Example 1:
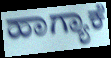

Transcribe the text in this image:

ಹಾಗ್ಯಾಕೆ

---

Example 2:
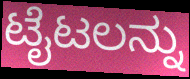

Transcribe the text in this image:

ಟೈಟಲನ್ನು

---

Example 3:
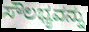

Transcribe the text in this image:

ಸೌಲಭ್ಯವನ್ನು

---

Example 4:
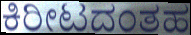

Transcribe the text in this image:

ಕಿರೀಟದಂತಹ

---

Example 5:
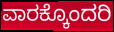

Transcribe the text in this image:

ವಾರಕ್ಕೊಂದರಿ